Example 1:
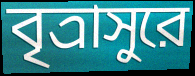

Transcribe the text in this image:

বৃত্রাসুরে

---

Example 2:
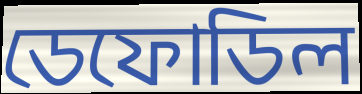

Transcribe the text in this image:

ডেফোডিল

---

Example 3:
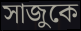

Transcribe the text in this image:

সাজুকে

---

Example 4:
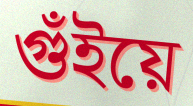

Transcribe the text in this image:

গুঁইয়ে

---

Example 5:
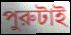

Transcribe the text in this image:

পুরুটাই